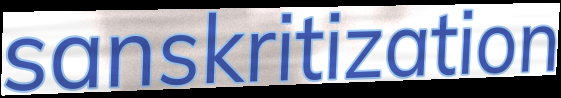
sanskritization